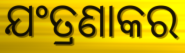
ଯଂତ୍ରଣାକର